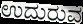
ಉದುರುವ